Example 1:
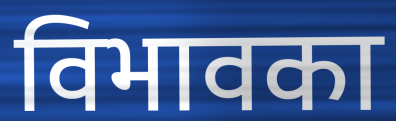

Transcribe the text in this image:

विभावका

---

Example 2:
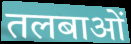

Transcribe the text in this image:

तलबाओं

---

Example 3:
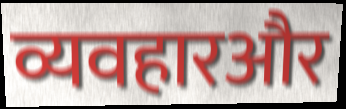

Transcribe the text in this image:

व्यवहारऔर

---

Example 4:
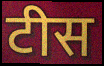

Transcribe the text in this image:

टीस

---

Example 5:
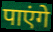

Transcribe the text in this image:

पाएंगे